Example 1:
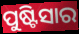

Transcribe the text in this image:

ପୁଷ୍ଟିସାର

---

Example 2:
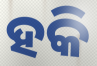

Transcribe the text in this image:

ହକି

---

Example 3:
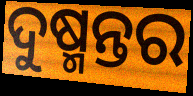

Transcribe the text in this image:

ଦୁଷ୍ମନ୍ତର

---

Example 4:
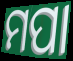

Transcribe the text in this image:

ମପା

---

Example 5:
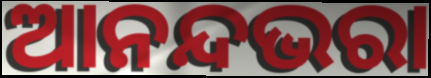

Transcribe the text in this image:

ଆନନ୍ଦଭରା